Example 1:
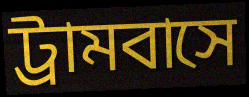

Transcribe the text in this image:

ট্রামবাসে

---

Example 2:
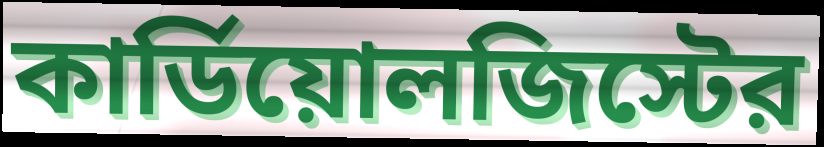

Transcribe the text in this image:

কার্ডিয়োলজিস্টের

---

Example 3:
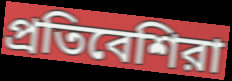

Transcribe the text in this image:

প্রতিবেশিরা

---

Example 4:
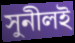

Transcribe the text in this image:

সুনীলই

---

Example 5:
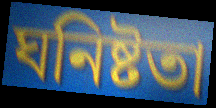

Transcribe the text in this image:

ঘনিষ্টতা